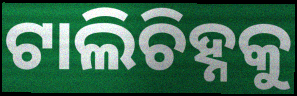
ଟାଲିଚିହ୍ନକୁ